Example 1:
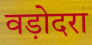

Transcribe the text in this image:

वड़ोदरा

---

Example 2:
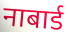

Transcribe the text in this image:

नाबार्ड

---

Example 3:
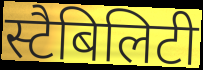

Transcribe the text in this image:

स्टैबिलिटी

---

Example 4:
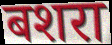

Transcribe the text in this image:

बशरा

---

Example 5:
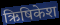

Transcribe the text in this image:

ऋिषिकेश